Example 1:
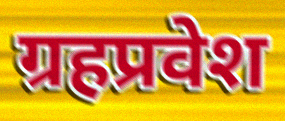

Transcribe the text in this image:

ग्रहप्रवेश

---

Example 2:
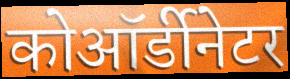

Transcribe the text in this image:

कोऑर्डीनेटर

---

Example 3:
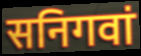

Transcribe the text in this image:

सनिगवां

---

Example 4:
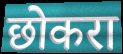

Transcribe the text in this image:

छोकरा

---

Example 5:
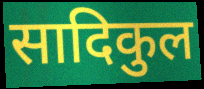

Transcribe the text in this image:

सादिकुल